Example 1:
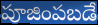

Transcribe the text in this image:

పూజింపబడే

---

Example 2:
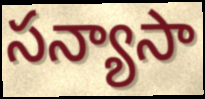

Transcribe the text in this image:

సన్యాసా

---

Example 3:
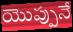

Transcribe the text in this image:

యొప్పునే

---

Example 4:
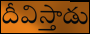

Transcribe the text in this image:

దీవిస్తాడు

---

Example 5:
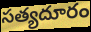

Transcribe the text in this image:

సత్యదూరం